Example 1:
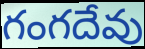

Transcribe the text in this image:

గంగదేవు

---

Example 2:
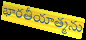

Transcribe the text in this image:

భారతీయాత్మను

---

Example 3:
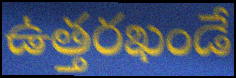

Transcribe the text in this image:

ఉత్తరఖండే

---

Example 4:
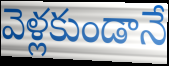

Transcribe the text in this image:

వెళ్లకుండానే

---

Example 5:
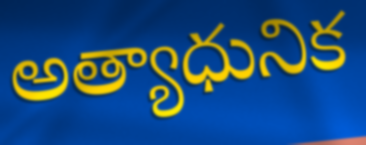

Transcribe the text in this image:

అత్యాధునిక